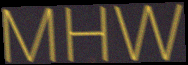
MHW